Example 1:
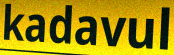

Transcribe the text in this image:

kadavul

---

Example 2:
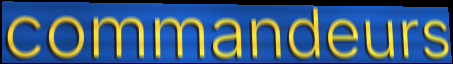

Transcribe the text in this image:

commandeurs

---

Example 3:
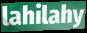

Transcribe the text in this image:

lahilahy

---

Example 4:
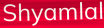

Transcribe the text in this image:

Shyamlal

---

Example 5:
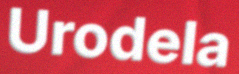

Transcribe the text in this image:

Urodela